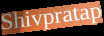
Shivpratap